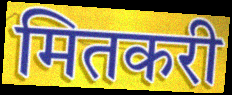
मितकरी